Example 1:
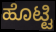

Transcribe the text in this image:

ಹೊಟ್ಟಿ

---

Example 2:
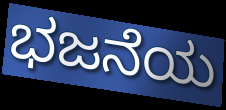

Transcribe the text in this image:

ಭಜನೆಯ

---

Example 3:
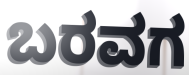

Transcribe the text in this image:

ಬರವಗ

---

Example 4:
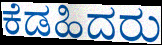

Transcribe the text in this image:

ಕೆಡಹಿದರು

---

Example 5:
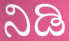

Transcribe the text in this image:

ನಿಡಿ